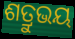
ଶତ୍ରୁଭୟ